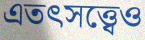
এতৎসত্ত্বেও